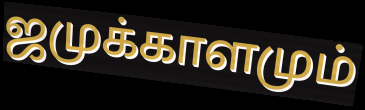
ஜமுக்காளமும்